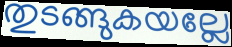
തുടങ്ങുകയല്ലേ